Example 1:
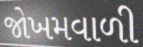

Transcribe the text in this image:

જોખમવાળી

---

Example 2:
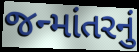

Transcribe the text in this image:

જન્માંતરનું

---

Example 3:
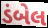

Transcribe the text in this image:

ડંબેલ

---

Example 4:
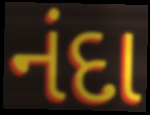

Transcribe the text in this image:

નંદા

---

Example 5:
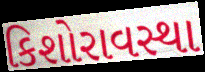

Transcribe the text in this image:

કિશોરાવસ્થા